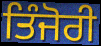
ਤਿੰਜੋਰੀ